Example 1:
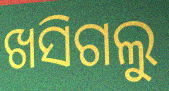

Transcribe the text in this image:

ଖସିଗଲୁ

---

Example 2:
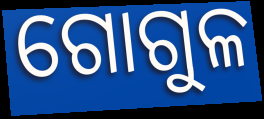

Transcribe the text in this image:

ଗୋଗୁଳ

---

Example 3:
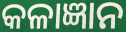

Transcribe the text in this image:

କଳାଜ୍ଞାନ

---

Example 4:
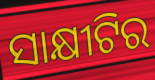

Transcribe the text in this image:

ସାକ୍ଷୀଟିର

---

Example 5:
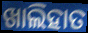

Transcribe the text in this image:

ଖାଲିହାତ